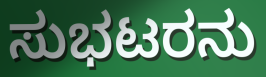
ಸುಭಟರನು